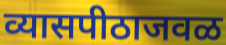
व्यासपीठाजवळ